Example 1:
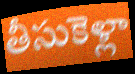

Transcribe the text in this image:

తీసుకెళ్లా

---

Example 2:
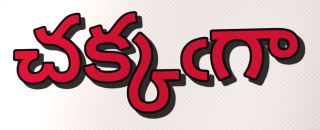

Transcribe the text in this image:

చక్కఁగా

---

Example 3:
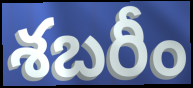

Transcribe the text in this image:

శబరీం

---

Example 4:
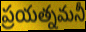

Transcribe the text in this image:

ప్రయత్నమనీ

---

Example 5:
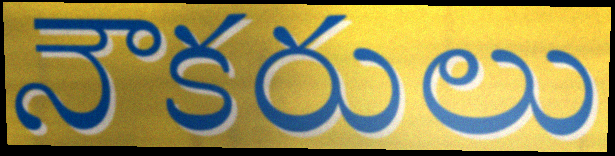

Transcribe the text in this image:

నౌకరులు